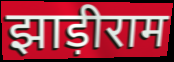
झाड़ीराम